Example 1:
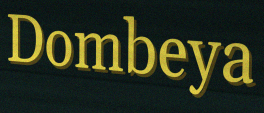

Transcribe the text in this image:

Dombeya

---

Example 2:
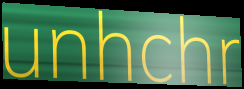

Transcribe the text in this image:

unhchr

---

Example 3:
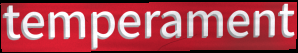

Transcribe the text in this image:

temperament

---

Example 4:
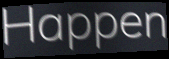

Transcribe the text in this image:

Happen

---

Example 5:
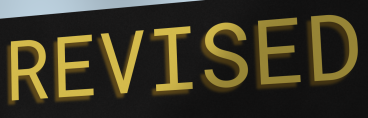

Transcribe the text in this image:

REVISED